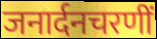
जनार्दनचरणीं